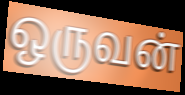
ஒருவன்